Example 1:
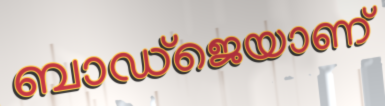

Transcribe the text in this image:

ബാഡ്ജെയാണ്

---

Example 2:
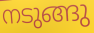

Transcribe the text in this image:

നടുങ്ങു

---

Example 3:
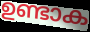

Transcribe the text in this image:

ഉണ്ടാക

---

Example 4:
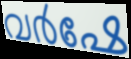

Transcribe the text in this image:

വർഷേ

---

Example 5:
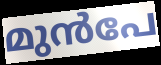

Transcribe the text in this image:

മുൻപേ